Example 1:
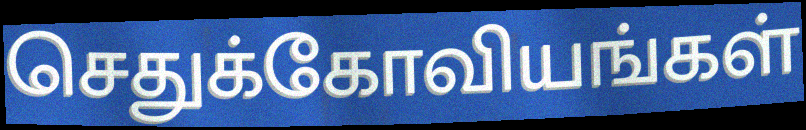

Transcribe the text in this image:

செதுக்கோவியங்கள்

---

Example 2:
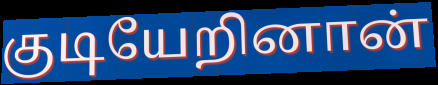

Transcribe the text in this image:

குடியேறினான்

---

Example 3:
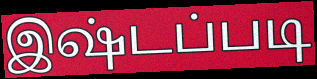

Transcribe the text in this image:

இஷ்டப்படி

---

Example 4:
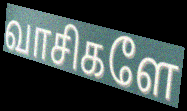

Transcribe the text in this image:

வாசிகளே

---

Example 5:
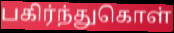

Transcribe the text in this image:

பகிர்ந்துகொள்